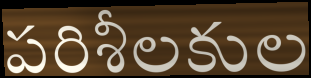
పరిశీలకుల